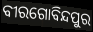
ବୀରଗୋବିନ୍ଦପୁର